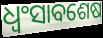
ଧ୍ଵଂସାବଶେଷ